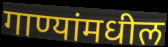
गाण्यांमधील